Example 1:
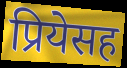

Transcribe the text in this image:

प्रियेसह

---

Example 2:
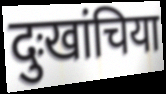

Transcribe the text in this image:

दुःखांचिया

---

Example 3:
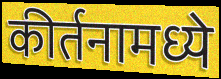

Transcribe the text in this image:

कीर्तनामध्ये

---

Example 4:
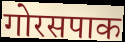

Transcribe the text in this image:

गोरसपाक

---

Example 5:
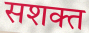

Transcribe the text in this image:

सशक्त